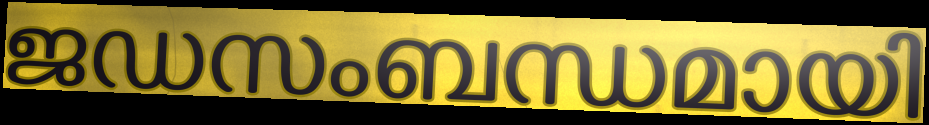
ജഡസംബന്ധമായി